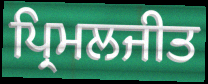
ਪ੍ਰਿਮਲਜੀਤ